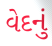
વેદનું